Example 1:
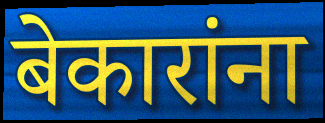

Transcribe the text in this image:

बेकारांना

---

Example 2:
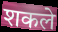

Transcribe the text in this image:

शकले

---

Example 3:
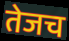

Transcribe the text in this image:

तेजच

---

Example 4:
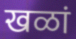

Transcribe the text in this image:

खळां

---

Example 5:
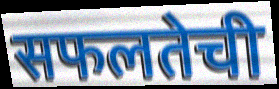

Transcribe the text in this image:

सफलतेची